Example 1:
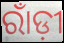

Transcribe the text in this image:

ରାଁଡ଼ୀ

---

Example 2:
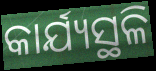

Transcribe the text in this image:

କାର୍ଯ୍ୟସ୍ଥଳି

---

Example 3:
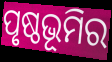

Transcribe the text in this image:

ପୃଷ୍ଠଭୂମିର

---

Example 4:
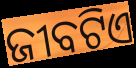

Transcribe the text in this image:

ଜୀବଟିଏ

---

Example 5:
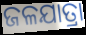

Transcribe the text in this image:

ଜଳଯାତ୍ରା